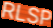
RLSP